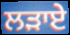
ਲੜਾਏ